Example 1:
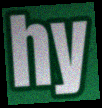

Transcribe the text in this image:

hy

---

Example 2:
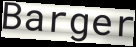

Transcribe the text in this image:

Barger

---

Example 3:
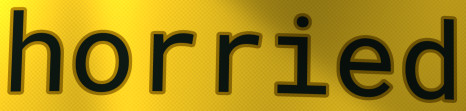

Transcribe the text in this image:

horried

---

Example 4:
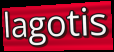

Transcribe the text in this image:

lagotis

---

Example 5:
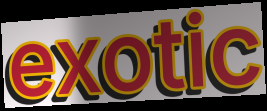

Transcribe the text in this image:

exotic